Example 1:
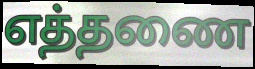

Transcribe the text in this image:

எத்தணை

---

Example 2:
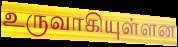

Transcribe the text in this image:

உருவாகியுள்ளன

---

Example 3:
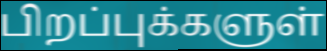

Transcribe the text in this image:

பிறப்புக்களுள்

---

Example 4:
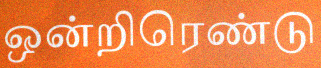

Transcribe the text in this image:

ஒன்றிரெண்டு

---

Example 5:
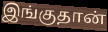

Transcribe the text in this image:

இங்குதான்